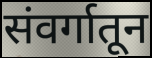
संवर्गातून